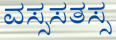
ವಸ್ಸಸತಸ್ಸ